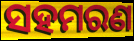
ସହମରଣ